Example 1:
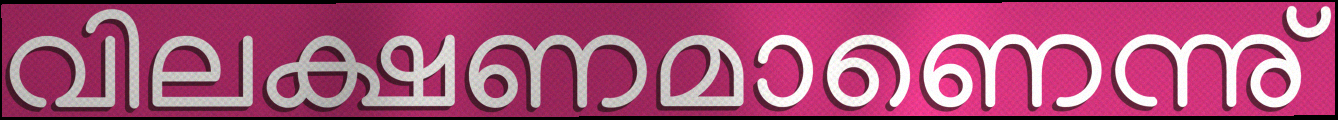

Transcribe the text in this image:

വിലക്ഷണമാണെന്നു്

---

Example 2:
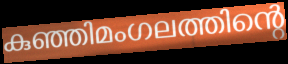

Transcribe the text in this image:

കുഞ്ഞിമംഗലത്തിന്റെ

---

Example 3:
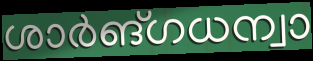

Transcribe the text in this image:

ശാർങ്ഗധന്വാ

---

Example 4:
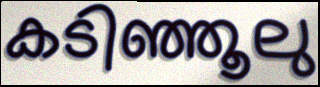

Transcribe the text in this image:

കടിഞ്ഞൂലു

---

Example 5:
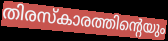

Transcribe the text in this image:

തിരസ്കാരത്തിന്റെയും